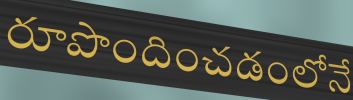
రూపొందించడంలోనే